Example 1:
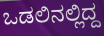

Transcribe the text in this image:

ಒಡಲಿನಲ್ಲಿದ್ದ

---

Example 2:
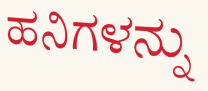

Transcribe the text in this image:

ಹನಿಗಳನ್ನು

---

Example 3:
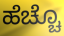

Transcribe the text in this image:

ಹೆಚ್ಚೊ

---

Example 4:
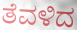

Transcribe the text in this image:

ತೆವಳಿದ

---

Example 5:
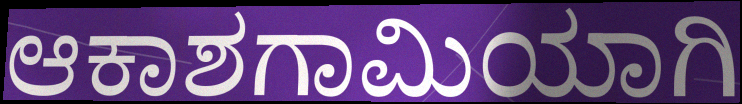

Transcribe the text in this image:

ಆಕಾಶಗಾಮಿಯಾಗಿ